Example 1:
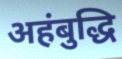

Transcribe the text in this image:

अहंबुद्धि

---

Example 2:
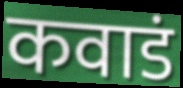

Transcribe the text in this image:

कवाडं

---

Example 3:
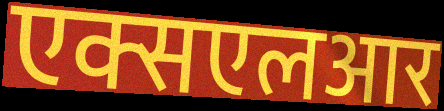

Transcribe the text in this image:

एक्सएलआर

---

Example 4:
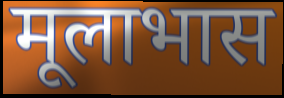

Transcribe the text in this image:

मूलाभास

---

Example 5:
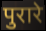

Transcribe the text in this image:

पुरारे